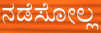
ನಡೆಸೋಲ್ಲ